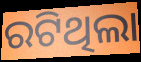
ରଟିଥିଲା